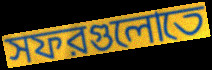
সফরগুলোতে